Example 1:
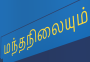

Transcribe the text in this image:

மந்தநிலையும்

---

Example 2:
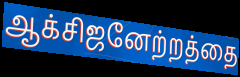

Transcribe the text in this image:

ஆக்சிஜனேற்றத்தை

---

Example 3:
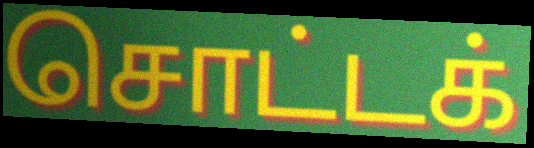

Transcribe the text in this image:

சொட்டக்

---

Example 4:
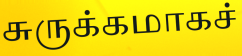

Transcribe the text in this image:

சுருக்கமாகச்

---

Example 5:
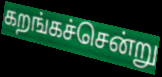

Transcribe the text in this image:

கறங்கச்சென்று